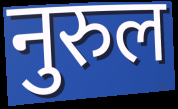
नुरुल